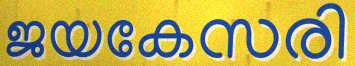
ജയകേസരി